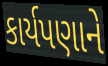
કાર્યપણાને